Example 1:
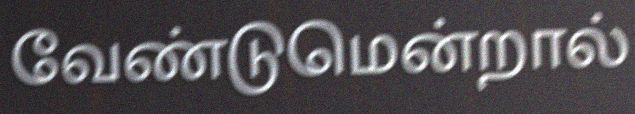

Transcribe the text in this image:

வேண்டுமென்றால்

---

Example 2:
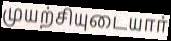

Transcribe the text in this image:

முயற்சியுடையார்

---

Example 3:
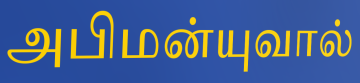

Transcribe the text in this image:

அபிமன்யுவால்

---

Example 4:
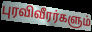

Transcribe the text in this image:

புரவிவீரர்களும்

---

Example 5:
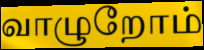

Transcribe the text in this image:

வாழுறோம்